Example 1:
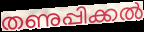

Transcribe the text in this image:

തണുപ്പിക്കൽ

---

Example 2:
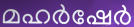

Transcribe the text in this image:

മഹർഷേർ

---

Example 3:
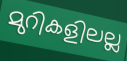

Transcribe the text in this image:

മുറികളിലല്ല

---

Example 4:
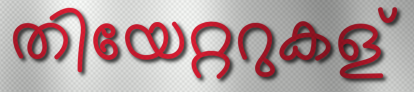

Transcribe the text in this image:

തിയേറ്ററുകള്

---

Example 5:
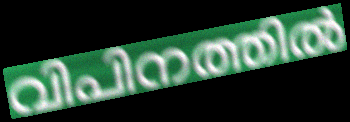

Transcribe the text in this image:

വിപിനത്തിൽ